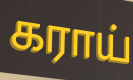
கராய்